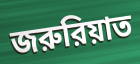
জরুরিয়াত